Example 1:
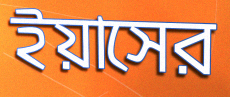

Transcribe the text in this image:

ইয়াসের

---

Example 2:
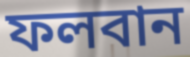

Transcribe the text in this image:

ফলবান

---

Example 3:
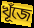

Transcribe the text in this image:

খূঁজে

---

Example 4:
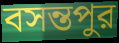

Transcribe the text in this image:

বসন্তপুর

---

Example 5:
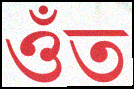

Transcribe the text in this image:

ওঁত